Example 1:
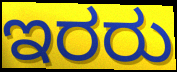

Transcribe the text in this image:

ಇರರು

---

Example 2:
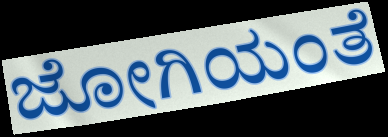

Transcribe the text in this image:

ಜೋಗಿಯಂತೆ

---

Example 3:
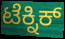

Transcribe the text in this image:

ಟೆಕ್ನಿಕ್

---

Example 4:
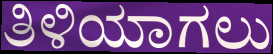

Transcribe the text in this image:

ತಿಳಿಯಾಗಲು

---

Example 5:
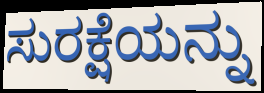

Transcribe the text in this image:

ಸುರಕ್ಷೆಯನ್ನು